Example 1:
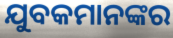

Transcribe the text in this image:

ଯୁବକମାନଙ୍କର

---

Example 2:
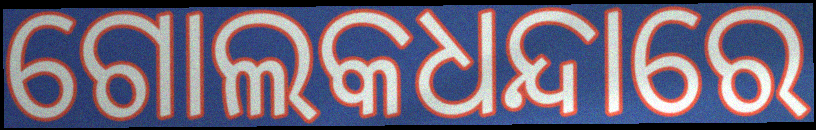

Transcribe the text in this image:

ଗୋଲକଧନ୍ଦାରେ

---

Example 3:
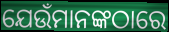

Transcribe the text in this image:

ଯେଉଁମାନଙ୍କଠାରେ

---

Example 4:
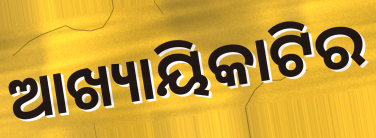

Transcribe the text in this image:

ଆଖ୍ୟାୟିକାଟିର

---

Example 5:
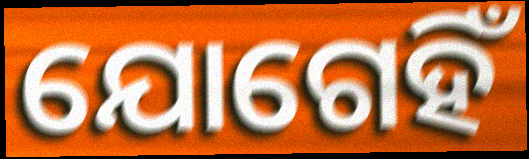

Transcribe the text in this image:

ଯୋଗେହିଁ